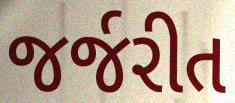
જર્જરીત